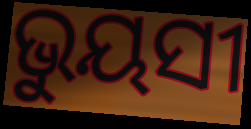
ଭୁୟସୀ